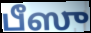
பீஸு